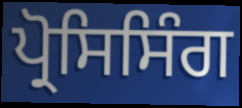
ਪ੍ਰੋਸਿਸਿੰਗ